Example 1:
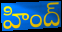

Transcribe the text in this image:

హింద్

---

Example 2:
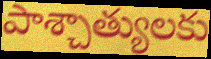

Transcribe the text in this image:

పాశ్చాత్యులకు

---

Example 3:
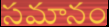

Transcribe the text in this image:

సమానం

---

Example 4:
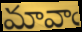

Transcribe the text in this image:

మావాఁ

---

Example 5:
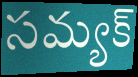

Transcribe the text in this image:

సమ్యక్